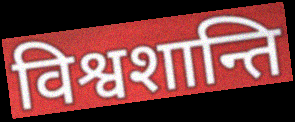
विश्वशान्ति